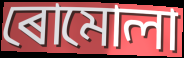
ৰোমোলা